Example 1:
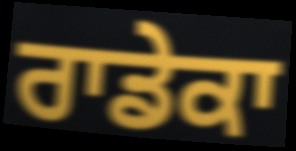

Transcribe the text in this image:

ਰਾਡੇਕਾ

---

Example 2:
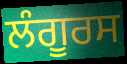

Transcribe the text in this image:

ਲੰਗੂਰਸ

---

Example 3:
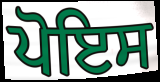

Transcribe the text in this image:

ਪੋਇਸ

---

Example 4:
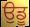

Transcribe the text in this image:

ਉਡੂ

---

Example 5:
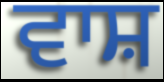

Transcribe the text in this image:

ਵਾਸ਼